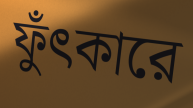
ফুঁৎকারে